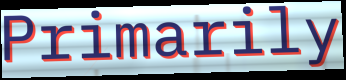
Primarily